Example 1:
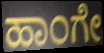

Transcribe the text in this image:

ಹಾಂಗೇ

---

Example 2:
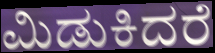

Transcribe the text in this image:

ಮಿಡುಕಿದರೆ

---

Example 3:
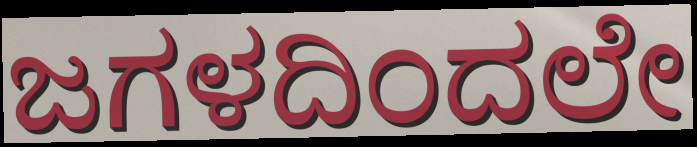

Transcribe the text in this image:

ಜಗಳದಿಂದಲೇ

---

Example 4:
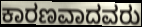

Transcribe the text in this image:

ಕಾರಣವಾದವರು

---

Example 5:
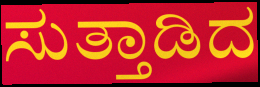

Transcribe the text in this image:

ಸುತ್ತಾಡಿದ